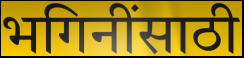
भगिनींसाठी